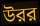
উরর